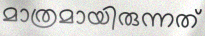
മാത്രമായിരുന്നത്